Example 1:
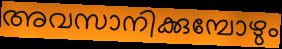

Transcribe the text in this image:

അവസാനിക്കുമ്പോഴും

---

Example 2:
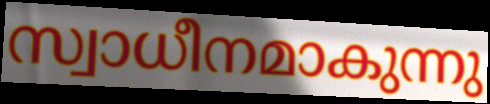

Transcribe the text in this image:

സ്വാധീനമാകുന്നു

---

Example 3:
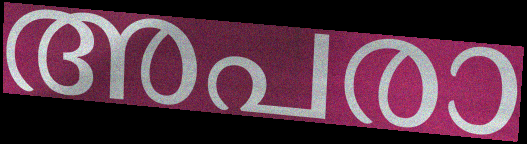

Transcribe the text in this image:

അപരാ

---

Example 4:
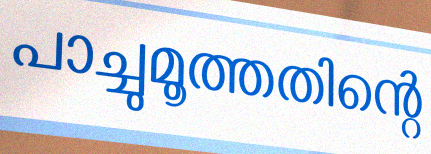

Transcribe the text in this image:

പാച്ചുമൂത്തതിന്റെ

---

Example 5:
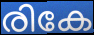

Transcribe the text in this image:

രികേ